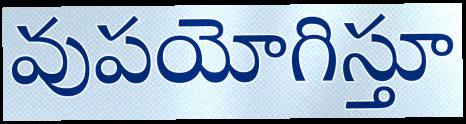
వుపయోగిస్తూ